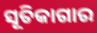
ସୂତିକାଗାର